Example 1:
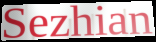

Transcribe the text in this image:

Sezhian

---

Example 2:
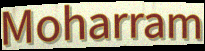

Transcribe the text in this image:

Moharram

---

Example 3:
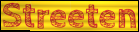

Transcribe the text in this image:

Streeten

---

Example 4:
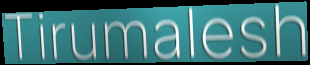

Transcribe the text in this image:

Tirumalesh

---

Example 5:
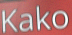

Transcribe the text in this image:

Kako